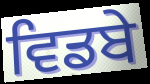
ਵਿਡਬੇ